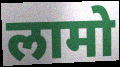
लामो